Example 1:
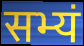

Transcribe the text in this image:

सभ्यं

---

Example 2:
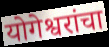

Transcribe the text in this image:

योगेश्वरांचा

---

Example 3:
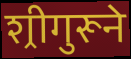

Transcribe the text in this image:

श्रीगुरूने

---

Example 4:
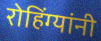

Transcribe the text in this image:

रोहिंग्यांनी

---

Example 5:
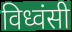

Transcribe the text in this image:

विध्वंसी